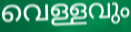
വെള്ളവും